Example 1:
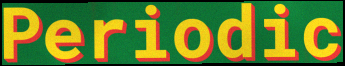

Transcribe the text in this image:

Periodic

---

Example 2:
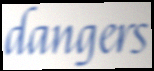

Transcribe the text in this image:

dangers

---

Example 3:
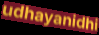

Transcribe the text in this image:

udhayanidhi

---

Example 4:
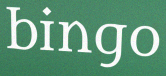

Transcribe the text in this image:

bingo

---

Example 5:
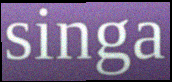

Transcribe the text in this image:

singa